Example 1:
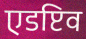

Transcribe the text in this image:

एडप्टिव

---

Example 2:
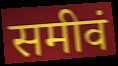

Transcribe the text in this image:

समीवं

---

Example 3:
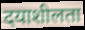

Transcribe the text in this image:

दयाशीलता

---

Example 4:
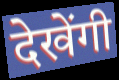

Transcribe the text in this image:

देखेंगी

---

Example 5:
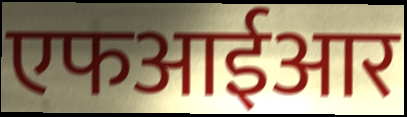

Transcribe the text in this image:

एफआईआर